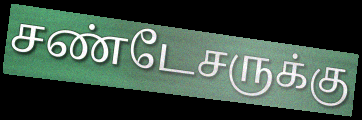
சண்டேசருக்கு